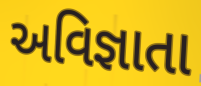
અવિજ્ઞાતા